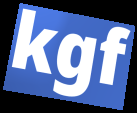
kgf